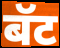
बॅट